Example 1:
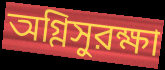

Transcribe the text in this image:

অগ্নিসুরক্ষা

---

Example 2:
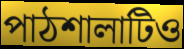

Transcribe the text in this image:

পাঠশালাটিও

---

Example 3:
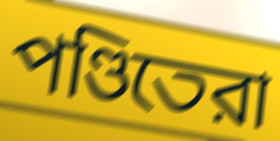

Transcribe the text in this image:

পণ্ডিতেরা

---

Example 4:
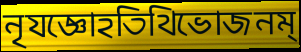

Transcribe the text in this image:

নৃযজ্ঞোহতিথিভোজনম্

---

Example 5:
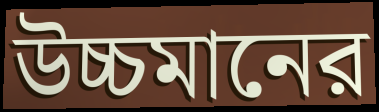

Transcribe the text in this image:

উচ্চমানের